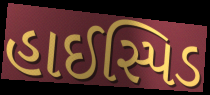
હાઈસ્પિડ